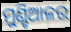
ମୁଣ୍ଡିଆଳର